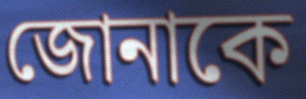
জোনাকে